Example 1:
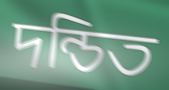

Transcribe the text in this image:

দন্ডিত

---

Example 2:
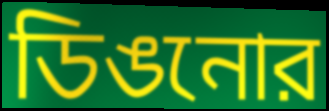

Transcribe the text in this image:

ডিঙনোর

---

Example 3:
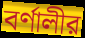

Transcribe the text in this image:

বর্ণালীর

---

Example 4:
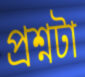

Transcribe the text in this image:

প্রশ্নটা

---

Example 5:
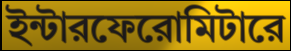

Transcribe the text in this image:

ইন্টারফেরোমিটারে